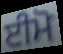
ਈਮੋ